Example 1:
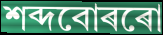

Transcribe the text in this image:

শব্দবোৰৰো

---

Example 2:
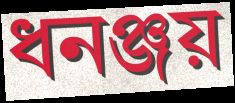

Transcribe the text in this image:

ধনঞ্জয়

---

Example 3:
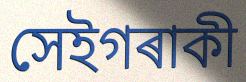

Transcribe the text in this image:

সেইগৰাকী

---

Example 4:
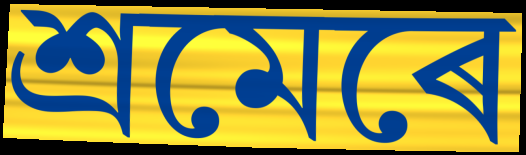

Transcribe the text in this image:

শ্ৰমেৰে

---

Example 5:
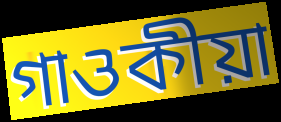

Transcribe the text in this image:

গাওকীয়া